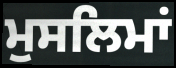
ਮੁਸਲਿਮਾਂ